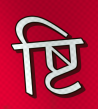
ष्टि